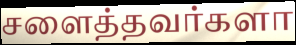
சளைத்தவர்களா